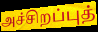
அச்சிறப்புத்